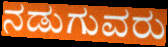
ನಡುಗುವರು